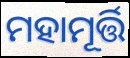
ମହାମୂର୍ତ୍ତି